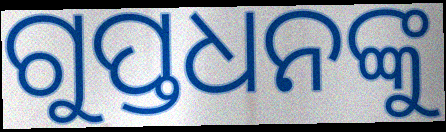
ଗୁପ୍ତଧନଙ୍କୁ